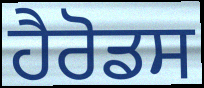
ਹੈਰੋਡਸ